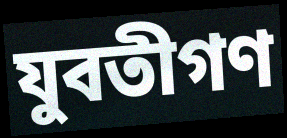
যুবতীগণ